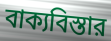
বাক্যবিস্তার